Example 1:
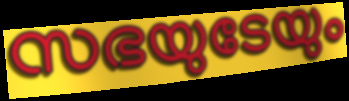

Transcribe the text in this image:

സഭയുടേയും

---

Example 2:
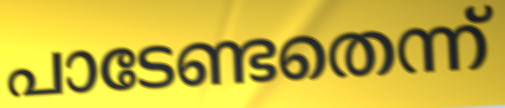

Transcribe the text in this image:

പാടേണ്ടതെന്ന്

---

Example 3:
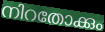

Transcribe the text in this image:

നിറതോക്കും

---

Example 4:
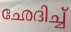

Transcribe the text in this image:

ഛേദിച്ച്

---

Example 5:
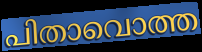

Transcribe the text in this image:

പിതാവൊത്ത